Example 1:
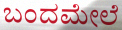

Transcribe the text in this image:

ಬಂದಮೇಲೆ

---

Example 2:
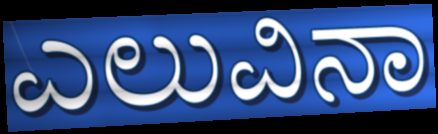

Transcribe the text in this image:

ಎಲುವಿನಾ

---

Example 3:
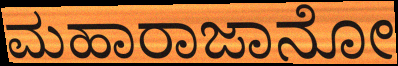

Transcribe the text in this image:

ಮಹಾರಾಜಾನೋ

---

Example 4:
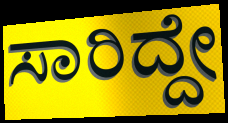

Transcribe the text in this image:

ಸಾರಿದ್ದೇ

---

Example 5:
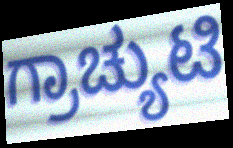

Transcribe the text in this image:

ಗ್ರಾಚ್ಯುಟಿ